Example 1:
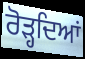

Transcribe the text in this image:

ਰੋੜ੍ਹਦਿਆਂ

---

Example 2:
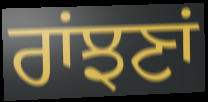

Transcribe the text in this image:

ਰਾਂਝਣਾਂ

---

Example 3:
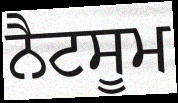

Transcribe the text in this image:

ਨੈਟਸੂਮ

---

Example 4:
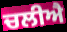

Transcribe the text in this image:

ਚਲੀਐ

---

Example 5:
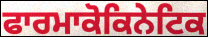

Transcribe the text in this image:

ਫਾਰਮਾਕੋਕਿਨੇਟਿਕ